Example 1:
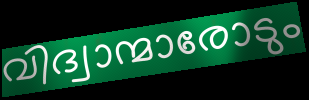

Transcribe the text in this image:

വിദ്വാന്മാരോടും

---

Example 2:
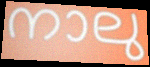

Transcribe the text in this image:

നാലു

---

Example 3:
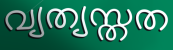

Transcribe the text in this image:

വ്യത്യസ്തത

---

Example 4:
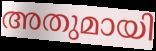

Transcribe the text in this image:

അതുമായി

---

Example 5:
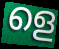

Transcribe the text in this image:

ളെ